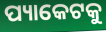
ପ୍ୟାକେଟକୁ